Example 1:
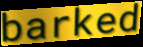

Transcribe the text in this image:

barked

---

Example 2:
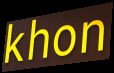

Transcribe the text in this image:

khon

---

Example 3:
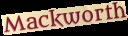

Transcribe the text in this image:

Mackworth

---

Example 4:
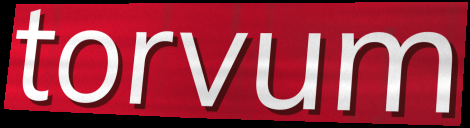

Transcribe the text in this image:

torvum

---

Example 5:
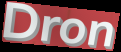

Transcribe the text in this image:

Dron